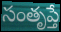
సంతృప్తే